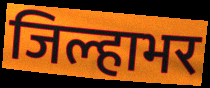
जिल्हाभर